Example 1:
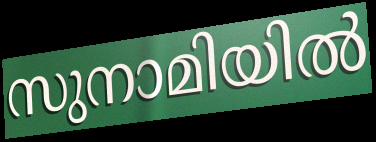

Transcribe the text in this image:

സുനാമിയിൽ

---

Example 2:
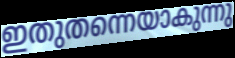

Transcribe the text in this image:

ഇതുതന്നെയാകുന്നു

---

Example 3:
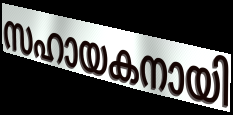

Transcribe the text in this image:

സഹായകനായി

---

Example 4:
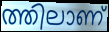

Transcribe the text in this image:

ത്തിലാണ്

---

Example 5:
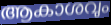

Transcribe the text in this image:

ആകാശവും